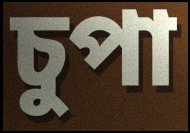
চুপা